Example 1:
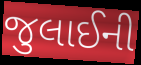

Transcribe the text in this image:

જુલાઈની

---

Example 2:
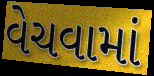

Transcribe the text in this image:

વેચવામાં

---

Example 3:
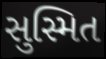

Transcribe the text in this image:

સુસ્મિત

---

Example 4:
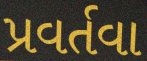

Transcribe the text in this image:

પ્રવર્તવા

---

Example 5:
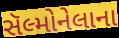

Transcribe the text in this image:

સૅલ્મોનેલાના